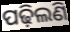
ପଢ଼ିଲଣି